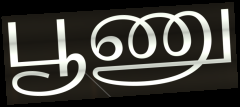
பூணு